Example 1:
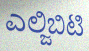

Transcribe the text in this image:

ಎಲ್ಜಿಬಿಟಿ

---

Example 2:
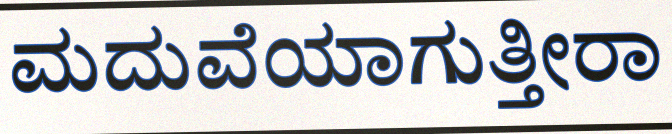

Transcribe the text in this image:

ಮದುವೆಯಾಗುತ್ತೀರಾ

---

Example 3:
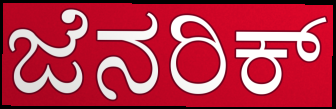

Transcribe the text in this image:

ಜೆನರಿಕ್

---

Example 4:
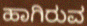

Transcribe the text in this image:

ಹಾಗಿರುವ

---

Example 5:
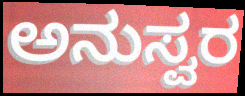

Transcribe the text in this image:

ಅನುಸ್ವರ